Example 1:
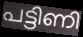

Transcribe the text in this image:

പട്ടിണി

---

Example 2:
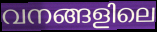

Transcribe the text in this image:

വനങ്ങളിലെ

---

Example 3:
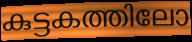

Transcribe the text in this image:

കുട്ടകത്തിലോ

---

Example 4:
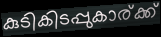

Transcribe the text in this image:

കുടികിടപ്പുകാര്ക്ക്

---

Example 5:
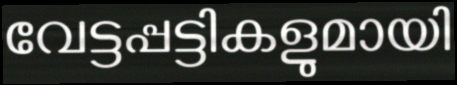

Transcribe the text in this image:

വേട്ടപ്പട്ടികളുമായി